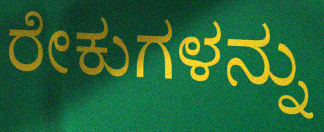
ರೇಕುಗಳನ್ನು